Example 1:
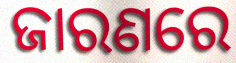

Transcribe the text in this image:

ଜାରଣରେ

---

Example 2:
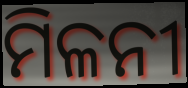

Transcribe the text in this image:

ମିଳନୀ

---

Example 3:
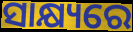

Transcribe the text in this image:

ସାକ୍ଷ୍ୟରେ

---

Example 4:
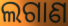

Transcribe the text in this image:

ଲଗାଣ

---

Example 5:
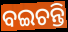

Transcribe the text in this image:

ବଇଚନ୍ତି